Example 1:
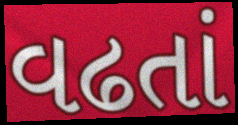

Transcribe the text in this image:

વઢતાં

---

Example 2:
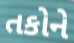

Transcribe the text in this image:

તકોને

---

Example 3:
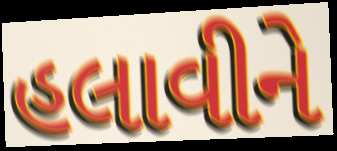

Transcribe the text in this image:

હલાવીને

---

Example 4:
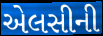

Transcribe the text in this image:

એલસીની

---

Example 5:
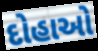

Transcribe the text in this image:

દોહાઓ